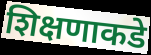
शिक्षणाकडे